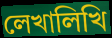
লেখালিখি